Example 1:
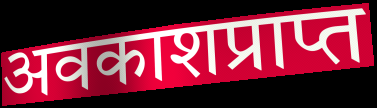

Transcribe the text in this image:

अवकाशप्राप्त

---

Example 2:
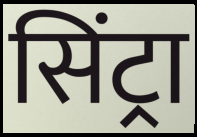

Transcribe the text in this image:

सिंट्रा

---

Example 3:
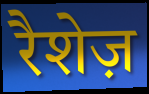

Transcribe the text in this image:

रैशेज़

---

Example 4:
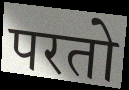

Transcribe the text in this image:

परतो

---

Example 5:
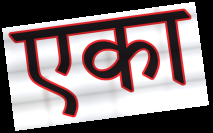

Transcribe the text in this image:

एका